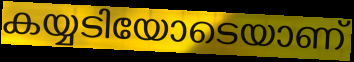
കയ്യടിയോടെയാണ്